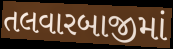
તલવારબાજીમાં